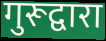
गुरूद्वारा